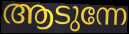
ആടുന്നേ